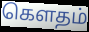
கௌதம்